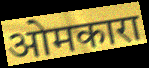
ओमकारा